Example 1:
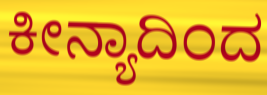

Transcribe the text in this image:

ಕೀನ್ಯಾದಿಂದ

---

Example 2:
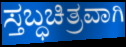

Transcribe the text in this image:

ಸ್ತಬ್ಧಚಿತ್ರವಾಗಿ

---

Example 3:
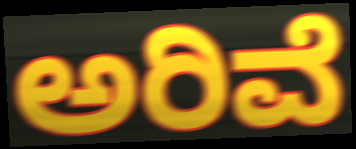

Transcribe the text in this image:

ಅರಿವೆ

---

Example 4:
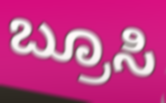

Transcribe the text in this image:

ಬ್ರೂಸಿ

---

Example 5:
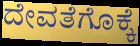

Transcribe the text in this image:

ದೇವತೆಗೊಕ್ಕೆ